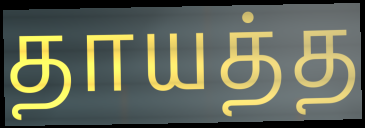
தாயத்த